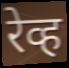
रेव्ह